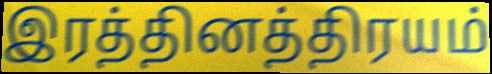
இரத்தினத்திரயம்